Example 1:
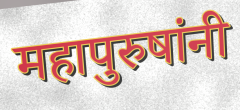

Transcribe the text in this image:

महापुरुषांनी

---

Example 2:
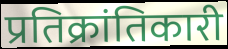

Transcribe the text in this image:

प्रतिक्रांतिकारी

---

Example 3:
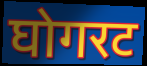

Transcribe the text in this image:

घोगरट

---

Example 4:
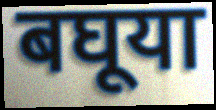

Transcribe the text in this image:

बघूया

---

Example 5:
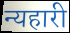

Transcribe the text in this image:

न्यहारी